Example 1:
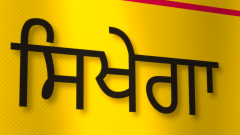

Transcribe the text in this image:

ਸਿਖੇਗਾ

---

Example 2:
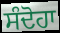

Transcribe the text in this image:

ਸੰਦੋਹਾ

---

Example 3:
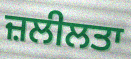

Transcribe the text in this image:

ਜ਼ਲੀਲਤਾ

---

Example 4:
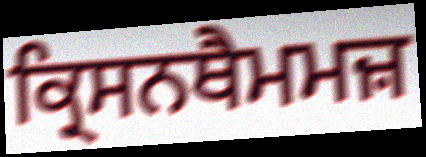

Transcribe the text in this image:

ਕ੍ਰਿਸਨਥੈਮਮਜ਼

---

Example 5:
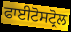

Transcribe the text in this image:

ਫਾਈਟੋਸਟ੍ਰੋਲ